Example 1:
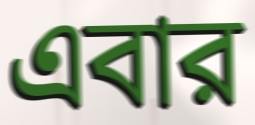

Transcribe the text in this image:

এবার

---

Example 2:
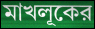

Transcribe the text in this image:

মাখলূকের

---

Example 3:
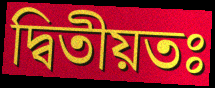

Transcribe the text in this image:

দ্বিতীয়তঃ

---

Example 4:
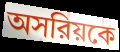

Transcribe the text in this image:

অসরিয়কে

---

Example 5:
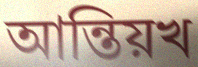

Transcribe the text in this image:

আন্তিয়খ